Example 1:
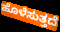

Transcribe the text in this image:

ಹೊಳೆಸುತ್ತದೆ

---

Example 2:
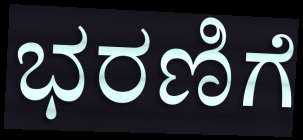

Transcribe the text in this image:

ಭರಣಿಗೆ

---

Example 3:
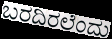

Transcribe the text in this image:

ಬರದಿರಲೆಂದು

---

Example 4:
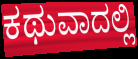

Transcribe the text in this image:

ಕಥುವಾದಲ್ಲಿ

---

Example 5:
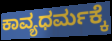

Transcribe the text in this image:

ಕಾವ್ಯಧರ್ಮಕ್ಕೆ